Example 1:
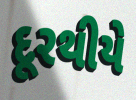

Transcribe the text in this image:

દૂરથીયે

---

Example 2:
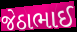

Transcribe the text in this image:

જેઠાભાઈ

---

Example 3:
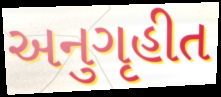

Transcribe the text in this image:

અનુગૃહીત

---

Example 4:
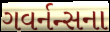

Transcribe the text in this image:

ગવર્નન્સના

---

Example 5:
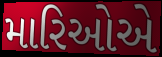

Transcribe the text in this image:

મારિઓએ